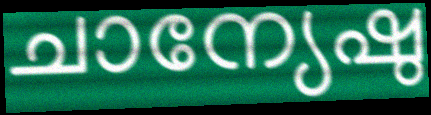
ചാന്യേഷു